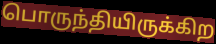
பொருந்தியிருக்கிற